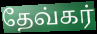
தேவ்கர்